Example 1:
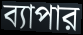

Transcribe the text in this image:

ব্যাপার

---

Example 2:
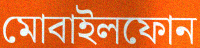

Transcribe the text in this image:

মোবাইলফোন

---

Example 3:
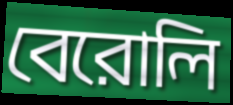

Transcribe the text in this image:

বেরোলি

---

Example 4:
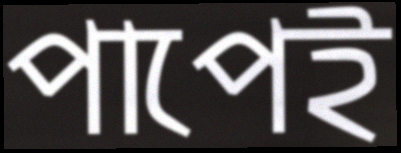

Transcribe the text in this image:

পাপেই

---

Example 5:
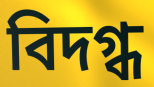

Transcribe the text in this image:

বিদগ্ধ